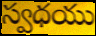
స్వధయు